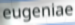
eugeniae